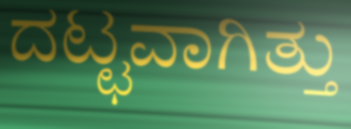
ದಟ್ಟವಾಗಿತ್ತು